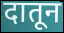
दातून